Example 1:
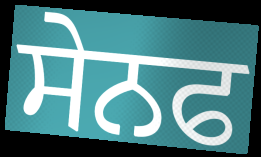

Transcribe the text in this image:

ਸੇਨਫ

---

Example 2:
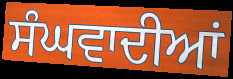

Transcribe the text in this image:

ਸੰਘਵਾਦੀਆਂ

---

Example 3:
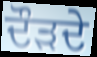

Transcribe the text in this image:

ਦੌੜਦੇ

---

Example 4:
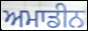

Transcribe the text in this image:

ਅਮਾਡੀਨ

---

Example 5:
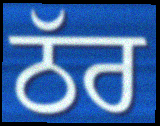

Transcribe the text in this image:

ਠੱਰ